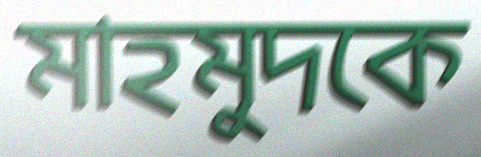
মাহমুদকে